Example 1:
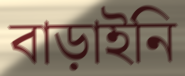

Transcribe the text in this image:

বাড়াইনি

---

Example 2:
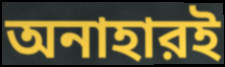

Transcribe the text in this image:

অনাহারই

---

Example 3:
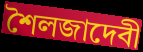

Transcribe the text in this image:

শৈলজাদেবী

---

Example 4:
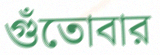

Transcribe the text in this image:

গুঁতোবার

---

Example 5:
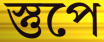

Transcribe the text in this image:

স্তুপে